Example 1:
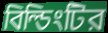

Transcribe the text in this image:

বিল্ডিংটির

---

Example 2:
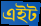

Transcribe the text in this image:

এইট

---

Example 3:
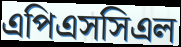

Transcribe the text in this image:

এপিএসসিএল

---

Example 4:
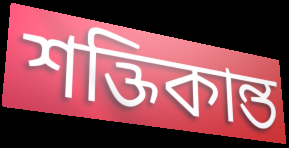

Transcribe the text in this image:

শক্তিকান্ত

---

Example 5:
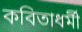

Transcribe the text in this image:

কবিতাধর্মী